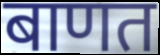
बाणत